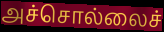
அச்சொல்லைச்